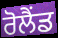
ਰੋਲੈਂਡ